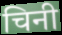
चिनी